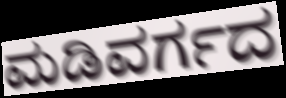
ಮಡಿವರ್ಗದ